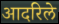
आदरिले